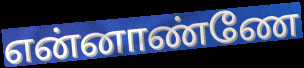
என்னாண்ணே